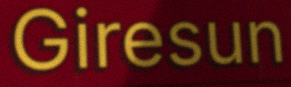
Giresun